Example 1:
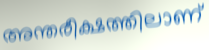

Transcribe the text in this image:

അന്തരീക്ഷത്തിലാണ്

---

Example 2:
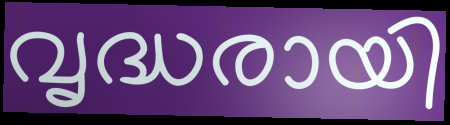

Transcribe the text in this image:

വൃദ്ധരായി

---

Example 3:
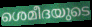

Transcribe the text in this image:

ശെമീദയുടെ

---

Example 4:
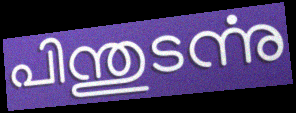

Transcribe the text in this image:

പിന്തുടൎന്നു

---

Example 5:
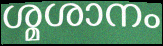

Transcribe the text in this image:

ശ്മശാനം